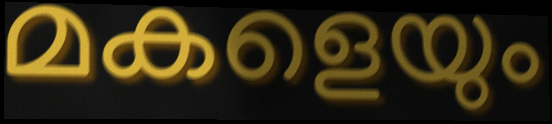
മകളെയും